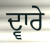
ਦ੍ਵਾਰੇ